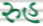
રુહ